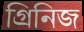
গ্রিনিজ